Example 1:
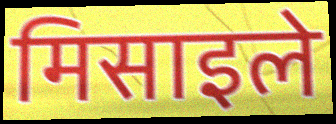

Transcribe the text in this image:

मिसाइले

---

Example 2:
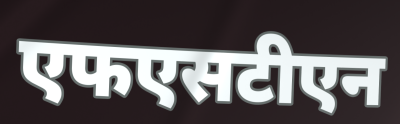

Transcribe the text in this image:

एफएसटीएन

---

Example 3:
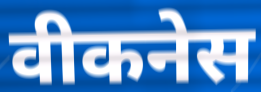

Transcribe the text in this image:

वीकनेस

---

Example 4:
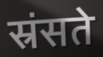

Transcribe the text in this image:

स्रंसते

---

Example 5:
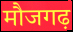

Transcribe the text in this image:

मौजगढ़